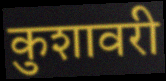
कुशावरी